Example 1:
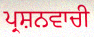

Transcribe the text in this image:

ਪ੍ਰਸ਼ਨਵਾਚੀ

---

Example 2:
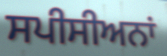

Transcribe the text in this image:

ਸਪੀਸੀਅਨਾਂ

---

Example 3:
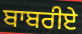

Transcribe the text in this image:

ਬਾਬਰੀਏ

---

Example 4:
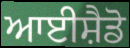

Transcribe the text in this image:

ਆਈਸ਼ੈਡੋ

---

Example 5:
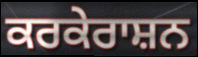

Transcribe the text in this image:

ਕਰਕੇਰਾਸ਼ਨ